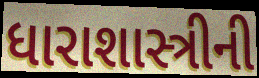
ધારાશાસ્ત્રીની